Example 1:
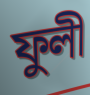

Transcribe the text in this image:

ফুলী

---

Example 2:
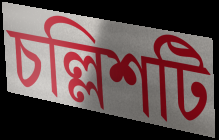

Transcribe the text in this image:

চল্লিশটি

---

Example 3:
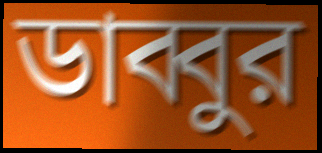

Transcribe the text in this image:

ডাব্বুর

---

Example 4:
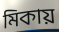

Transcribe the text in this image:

মিকায়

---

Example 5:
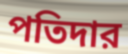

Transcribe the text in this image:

পতিদার